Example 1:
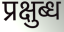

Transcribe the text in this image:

प्रक्षुब्ध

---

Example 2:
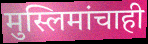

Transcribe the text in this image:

मुस्लिमांचाही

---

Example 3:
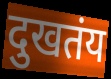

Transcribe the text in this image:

दुखतंय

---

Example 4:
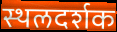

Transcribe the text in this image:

स्थलदर्शक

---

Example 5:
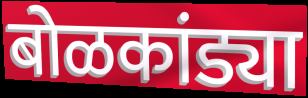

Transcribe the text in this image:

बोळकांड्या